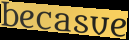
becasue